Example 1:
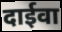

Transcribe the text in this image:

दाईवा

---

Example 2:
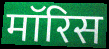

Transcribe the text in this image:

मॉरिस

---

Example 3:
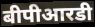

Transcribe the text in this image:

बीपीआरडी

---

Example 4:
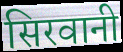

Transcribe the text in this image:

सिरवानी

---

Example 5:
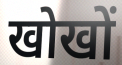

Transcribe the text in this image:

खोखों